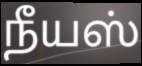
நீயஸ்